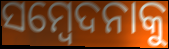
ସମ୍ବେଦନାକୁ